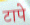
टापे